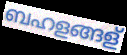
ബഹളങ്ങള്